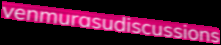
venmurasudiscussions